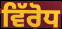
ਵਿੱਰੋਧ